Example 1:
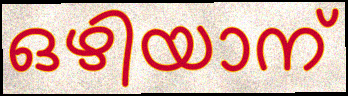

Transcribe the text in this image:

ഒഴിയാന്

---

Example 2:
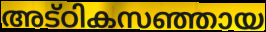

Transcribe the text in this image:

അട്ഠികസഞ്ഞായ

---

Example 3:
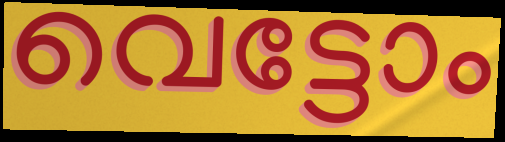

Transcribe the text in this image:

വെട്ടോം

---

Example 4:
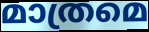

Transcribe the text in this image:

മാത്രമെ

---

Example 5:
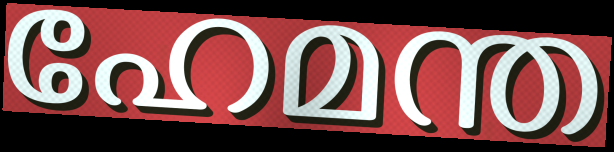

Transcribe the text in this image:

ഹേമന്ത